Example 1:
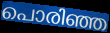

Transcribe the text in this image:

പൊരിഞ്ഞ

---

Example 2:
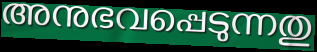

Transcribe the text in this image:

അനുഭവപ്പെടുന്നതു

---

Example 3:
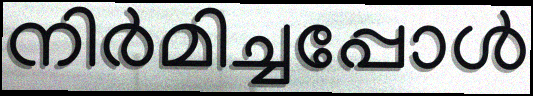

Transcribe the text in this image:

നിർമിച്ചപ്പോൾ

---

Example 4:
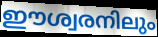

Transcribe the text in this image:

ഈശ്വരനിലും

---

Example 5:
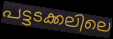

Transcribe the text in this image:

പട്ടടക്കലിലെ